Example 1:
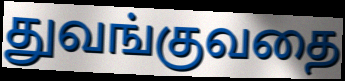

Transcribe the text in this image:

துவங்குவதை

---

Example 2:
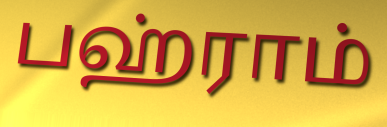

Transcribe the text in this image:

பஹ்ராம்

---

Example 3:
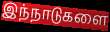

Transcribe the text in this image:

இந்நாடுகளை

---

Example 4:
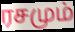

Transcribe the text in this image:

ரசமும்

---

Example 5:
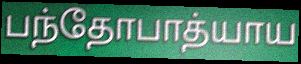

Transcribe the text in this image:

பந்தோபாத்யாய